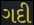
ગદી